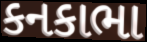
કનકાભા